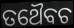
ତଥୈବଚ